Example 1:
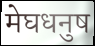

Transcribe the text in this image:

मेघधनुष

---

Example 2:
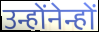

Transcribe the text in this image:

उन्होंनेन्हों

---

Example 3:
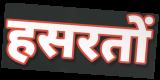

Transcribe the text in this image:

हसरतों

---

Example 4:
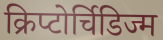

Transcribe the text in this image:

क्रिप्टोर्चिडिज्म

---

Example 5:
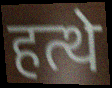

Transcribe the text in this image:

हत्थे